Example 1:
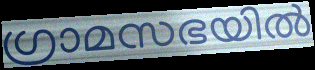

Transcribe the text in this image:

ഗ്രാമസഭയിൽ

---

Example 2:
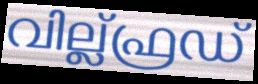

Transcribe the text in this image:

വില്ല്ഫ്രഡ്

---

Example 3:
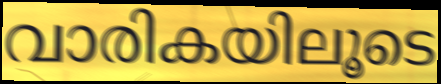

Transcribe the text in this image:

വാരികയിലൂടെ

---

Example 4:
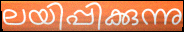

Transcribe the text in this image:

ലയിപ്പിക്കുന്നു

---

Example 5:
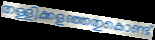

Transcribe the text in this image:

തള്ളിക്കളഞ്ഞതുകൊണ്ട്